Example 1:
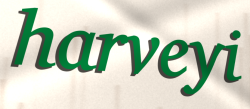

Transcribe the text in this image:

harveyi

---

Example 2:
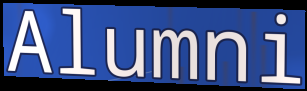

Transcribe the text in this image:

Alumni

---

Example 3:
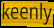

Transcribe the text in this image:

keenly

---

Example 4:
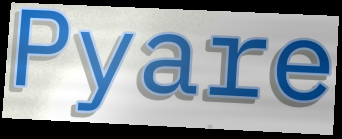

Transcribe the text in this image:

Pyare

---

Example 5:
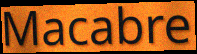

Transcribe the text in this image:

Macabre